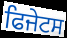
ਫਿਜੇਟਸ